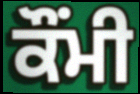
ਕੌਂਮੀ